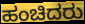
ಹಂಚಿದರು